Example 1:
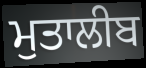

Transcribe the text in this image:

ਮੁਤਾਲੀਬ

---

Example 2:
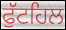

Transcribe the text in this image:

ਫੁੱਟਹਿਲ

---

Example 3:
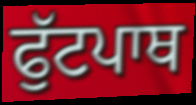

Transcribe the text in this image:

ਫੁੱਟਪਾਥ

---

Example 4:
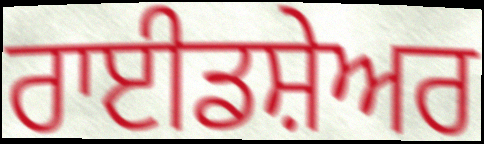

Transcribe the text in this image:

ਰਾਈਡਸ਼ੇਅਰ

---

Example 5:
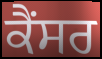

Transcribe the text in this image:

ਕੈੰਸਰ